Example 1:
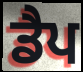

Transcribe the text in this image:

ਡੈਪ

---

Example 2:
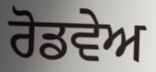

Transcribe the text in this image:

ਰੋਡਵੇਅ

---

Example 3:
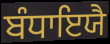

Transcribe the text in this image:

ਬੰਧਾਇਯੈ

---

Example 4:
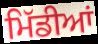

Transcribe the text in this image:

ਮਿੱਡੀਆਂ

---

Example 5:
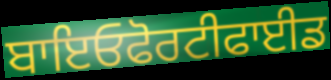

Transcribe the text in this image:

ਬਾਇਓਫੋਰਟੀਫਾਈਡ